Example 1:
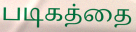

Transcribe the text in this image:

படிகத்தை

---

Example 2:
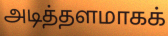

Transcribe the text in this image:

அடித்தளமாகக்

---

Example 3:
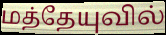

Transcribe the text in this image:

மத்தேயுவில்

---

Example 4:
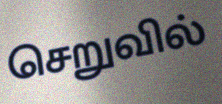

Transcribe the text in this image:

செறுவில்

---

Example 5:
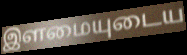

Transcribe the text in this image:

இளமையுடைய